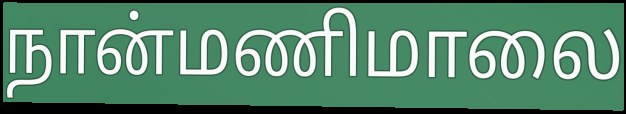
நான்மணிமாலை